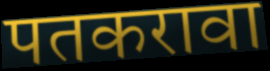
पतकरावा